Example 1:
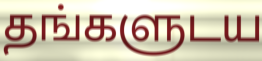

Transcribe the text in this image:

தங்களுடய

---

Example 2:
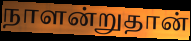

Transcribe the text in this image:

நாளன்றுதான்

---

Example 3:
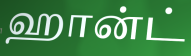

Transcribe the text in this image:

ஹான்ட்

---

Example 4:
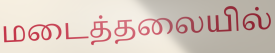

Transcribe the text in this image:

மடைத்தலையில்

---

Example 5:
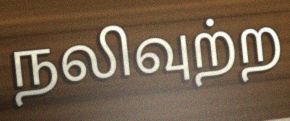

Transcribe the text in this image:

நலிவுற்ற